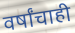
वर्षांचाही